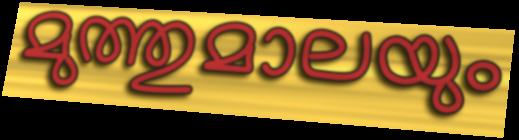
മുത്തുമാലയും